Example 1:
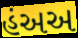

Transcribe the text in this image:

હંઅઅ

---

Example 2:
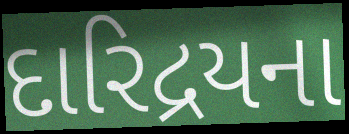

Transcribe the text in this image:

દારિદ્રયના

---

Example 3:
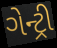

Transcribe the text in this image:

ગેન્ટ્રી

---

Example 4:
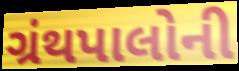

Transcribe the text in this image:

ગ્રંથપાલોની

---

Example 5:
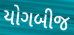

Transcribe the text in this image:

યોગબીજ